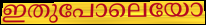
ഇതുപോലെയോ